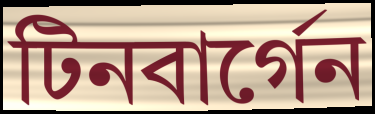
টিনবার্গেন